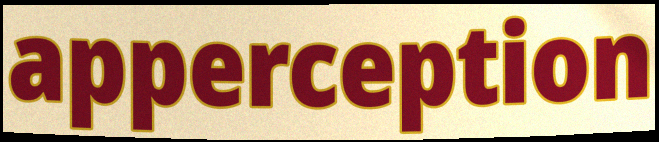
apperception